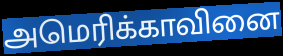
அமெரிக்காவினை